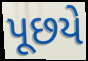
પૂછયે